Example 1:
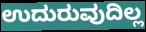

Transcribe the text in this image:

ಉದುರುವುದಿಲ್ಲ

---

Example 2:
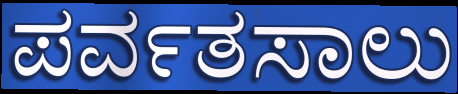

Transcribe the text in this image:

ಪರ್ವತಸಾಲು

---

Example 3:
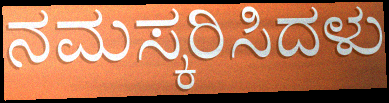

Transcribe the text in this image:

ನಮಸ್ಕರಿಸಿದಳು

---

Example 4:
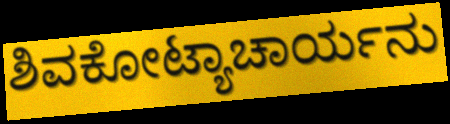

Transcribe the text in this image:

ಶಿವಕೋಟ್ಯಾಚಾರ್ಯನು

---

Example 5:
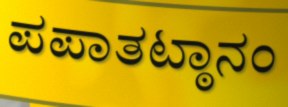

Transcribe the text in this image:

ಪಪಾತಟ್ಠಾನಂ